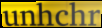
unhchr